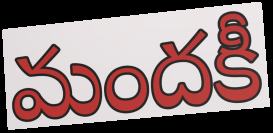
మందకీ